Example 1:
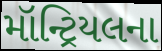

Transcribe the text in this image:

મૉન્ટ્રિયલના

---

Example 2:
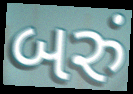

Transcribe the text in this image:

બરું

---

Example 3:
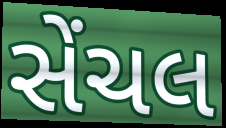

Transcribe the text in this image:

સેંચલ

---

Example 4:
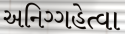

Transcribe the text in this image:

અનિગ્ગહેત્વા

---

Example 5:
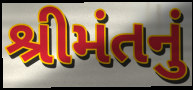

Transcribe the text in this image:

શ્રીમંતનું